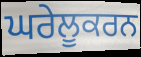
ਘਰੇਲੂਕਰਨ